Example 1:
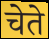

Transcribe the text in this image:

चेते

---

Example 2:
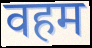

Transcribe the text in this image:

वहम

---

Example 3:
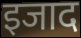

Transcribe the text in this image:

इजाद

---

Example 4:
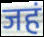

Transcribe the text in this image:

जहं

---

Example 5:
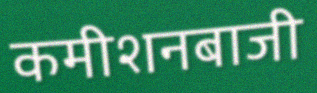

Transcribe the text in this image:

कमीशनबाजी